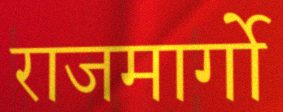
राजमार्गो